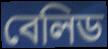
বেলিড